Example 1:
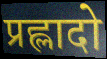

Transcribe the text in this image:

प्रह्लादो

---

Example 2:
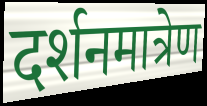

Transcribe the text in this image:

दर्शनमात्रेण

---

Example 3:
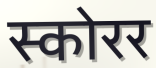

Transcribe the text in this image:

स्कोरर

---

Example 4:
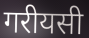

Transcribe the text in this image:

गरीयसी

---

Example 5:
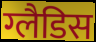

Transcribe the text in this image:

ग्लैडिस